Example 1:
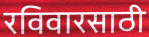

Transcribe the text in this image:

रविवारसाठी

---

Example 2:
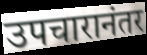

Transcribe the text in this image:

उपचारानंतर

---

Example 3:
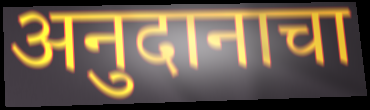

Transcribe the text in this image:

अनुदानाचा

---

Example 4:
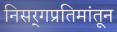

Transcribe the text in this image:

निसर्गप्रतिमांतून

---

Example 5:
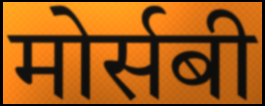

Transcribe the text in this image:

मोर्सबी